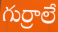
గుర్రాలే